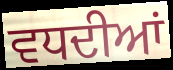
ਵਧਦੀਆਂ